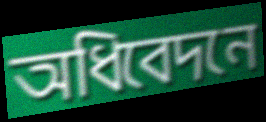
অধিবেদনে